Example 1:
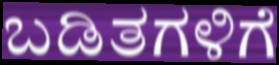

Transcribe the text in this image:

ಬಡಿತಗಳಿಗೆ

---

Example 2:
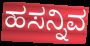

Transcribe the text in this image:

ಹಸನ್ನಿವ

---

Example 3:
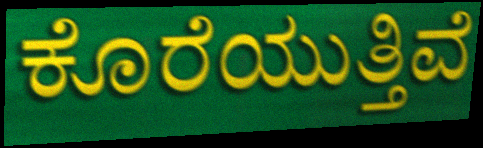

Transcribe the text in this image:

ಕೊರೆಯುತ್ತಿವೆ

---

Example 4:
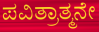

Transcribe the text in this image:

ಪವಿತ್ರಾತ್ಮನೇ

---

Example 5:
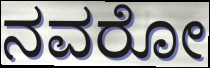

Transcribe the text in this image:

ನವರೋ